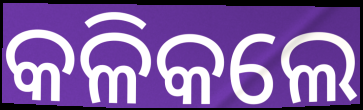
କଳିକଲେ